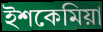
ইশকেমিয়া